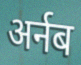
अर्नब